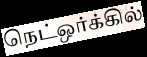
நெட்ஒர்க்கில்